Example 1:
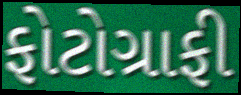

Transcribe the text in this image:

ફોટોગ્રાફી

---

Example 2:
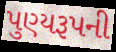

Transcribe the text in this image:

પુણ્યરૂપની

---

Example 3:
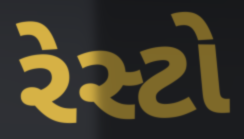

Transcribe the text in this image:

રેસ્ટો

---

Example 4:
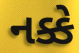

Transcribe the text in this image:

નક્કે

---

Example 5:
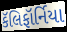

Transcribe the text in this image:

કૅલિફૉર્નિયા